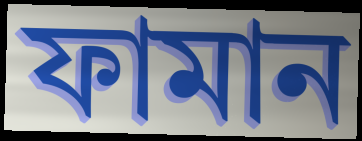
ফামান